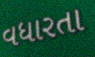
વધારતા